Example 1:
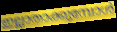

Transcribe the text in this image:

ഇല്ലാതാക്കുമ്പോൾ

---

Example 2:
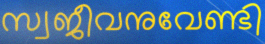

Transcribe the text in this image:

സ്വജീവനുവേണ്ടി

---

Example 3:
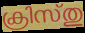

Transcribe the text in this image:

ക്രിസ്‌തു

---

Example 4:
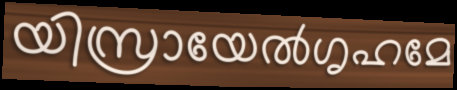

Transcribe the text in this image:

യിസ്രായേൽഗൃഹമേ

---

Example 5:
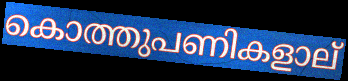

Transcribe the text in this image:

കൊത്തുപണികളാല്